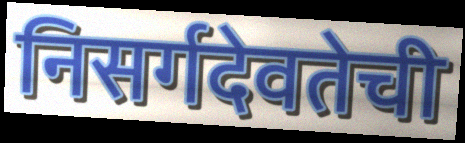
निसर्गदेवतेची